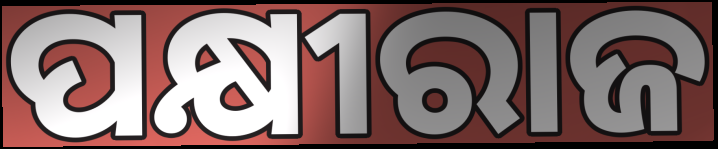
ପକ୍ଷୀରାଜ